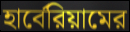
হার্বেরিয়ামের